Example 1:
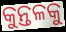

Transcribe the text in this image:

କୁନ୍ତଳକୁ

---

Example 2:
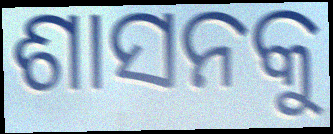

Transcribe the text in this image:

ଶାସନକୁ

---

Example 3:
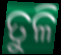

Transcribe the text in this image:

ତୁଳି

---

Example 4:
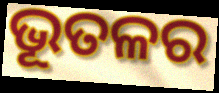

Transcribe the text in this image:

ଭୂତଳର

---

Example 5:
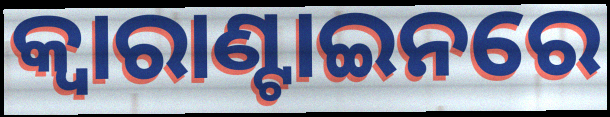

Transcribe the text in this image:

କ୍ବାରାଣ୍ଟାଇନରେ